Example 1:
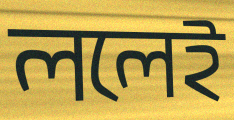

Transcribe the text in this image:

ললেই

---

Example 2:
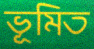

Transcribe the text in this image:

ভূমিত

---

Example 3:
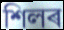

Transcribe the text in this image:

শিলৰ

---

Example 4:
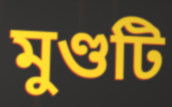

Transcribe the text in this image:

মুণ্ডটি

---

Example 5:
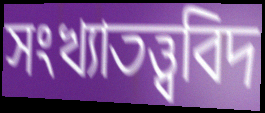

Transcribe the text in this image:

সংখ্যাতত্ত্ববিদ